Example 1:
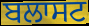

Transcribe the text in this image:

ਬਲਾਸਟ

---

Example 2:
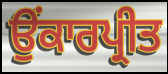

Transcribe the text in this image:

ਉਂਕਾਰਪ੍ਰੀਤ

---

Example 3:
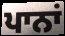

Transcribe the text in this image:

ਪਾਨਾਂ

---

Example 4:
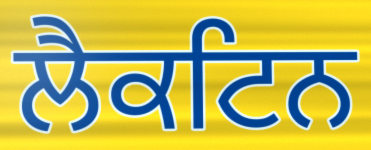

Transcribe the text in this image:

ਲੈਕਟਿਨ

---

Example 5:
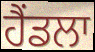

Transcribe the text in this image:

ਹੈਂਡਲਾ